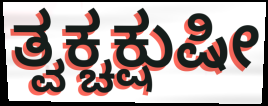
ತ್ವಕ್ಚಕ್ಷುಷೀ